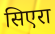
सिएरा